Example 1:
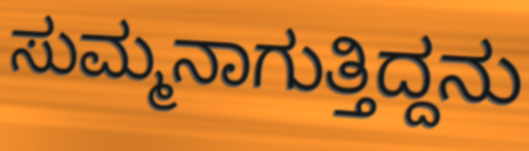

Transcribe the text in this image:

ಸುಮ್ಮನಾಗುತ್ತಿದ್ದನು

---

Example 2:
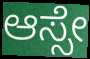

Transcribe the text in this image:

ಆಸ್ಸೇ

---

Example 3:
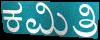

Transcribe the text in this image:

ಕಮಿತಿ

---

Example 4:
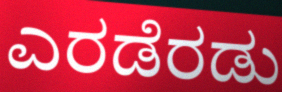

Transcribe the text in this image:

ಎರಡೆರಡು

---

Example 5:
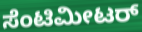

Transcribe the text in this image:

ಸೆಂಟಿಮೀಟರ್